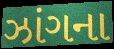
ઝાંગના